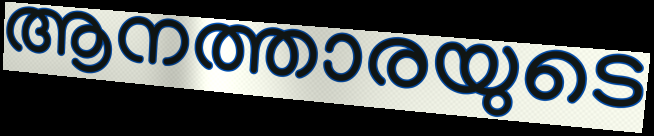
ആനത്താരയുടെ